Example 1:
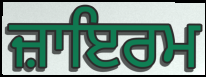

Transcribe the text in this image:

ਜ਼ਾਇਰਮ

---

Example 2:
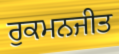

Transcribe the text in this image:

ਰੁਕਮਨਜੀਤ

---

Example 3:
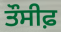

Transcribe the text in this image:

ਤੌਸੀਫ਼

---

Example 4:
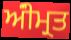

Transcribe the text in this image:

ਅੰੀਮ੍ਰਤ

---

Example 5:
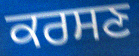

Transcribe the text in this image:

ਕਰਸਣ